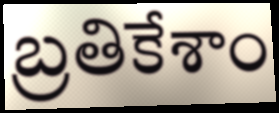
బ్రతికేశాం